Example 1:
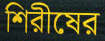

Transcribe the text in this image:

শিরীষের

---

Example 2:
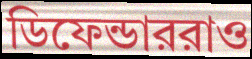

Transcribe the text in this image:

ডিফেন্ডাররাও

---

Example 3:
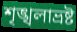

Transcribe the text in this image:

শৃঙ্খলাভ্রষ্ট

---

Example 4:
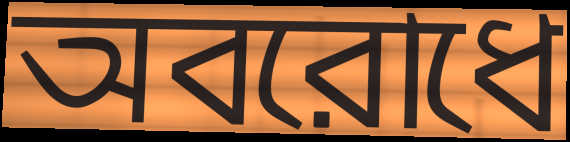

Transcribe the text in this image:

অবরোধে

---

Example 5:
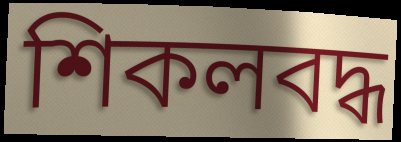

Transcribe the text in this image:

শিকলবদ্ধ